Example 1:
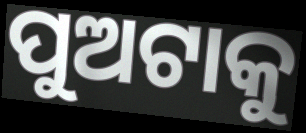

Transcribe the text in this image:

ପୁଅଟାକୁ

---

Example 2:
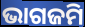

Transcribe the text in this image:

ଭାଗଜମି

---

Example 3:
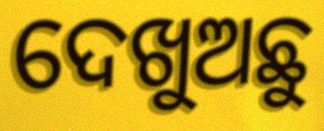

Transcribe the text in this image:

ଦେଖୁଅଛୁ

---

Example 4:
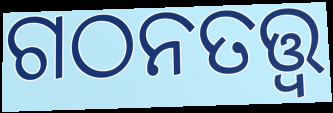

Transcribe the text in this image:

ଗଠନତତ୍ତ୍ୱ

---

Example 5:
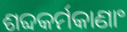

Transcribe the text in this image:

ଶବ୍ଦକର୍ମକାଣାଂ